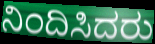
ನಿಂದಿಸಿದರು